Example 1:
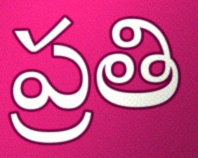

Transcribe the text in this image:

ప్రతి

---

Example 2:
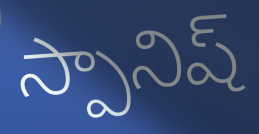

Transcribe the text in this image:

స్పానిష్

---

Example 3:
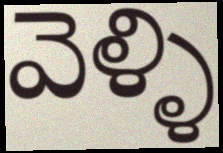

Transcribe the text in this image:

వెళ్ళి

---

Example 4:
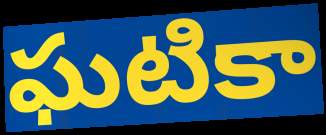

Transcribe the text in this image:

ఘటికా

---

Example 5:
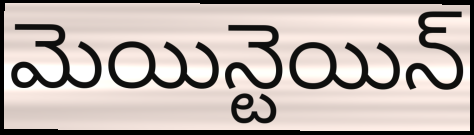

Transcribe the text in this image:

మెయిన్టెయిన్